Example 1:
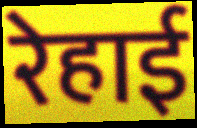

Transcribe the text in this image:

रेहाई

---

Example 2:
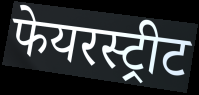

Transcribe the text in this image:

फेयरस्ट्रीट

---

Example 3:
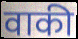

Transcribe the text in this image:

वाकी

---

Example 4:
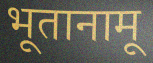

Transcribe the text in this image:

भूतानामू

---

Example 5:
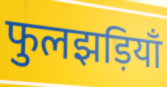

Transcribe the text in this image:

फुलझड़ियाँ